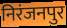
निरंजनपुर